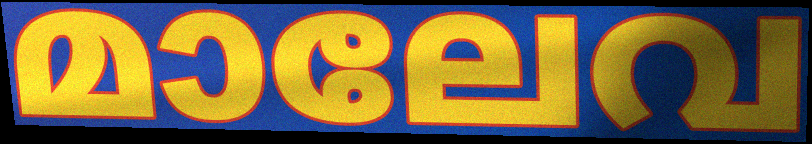
മാലേവ